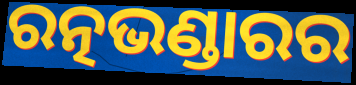
ରତ୍ନଭଣ୍ଡାରର